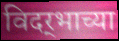
विदर्भाच्या